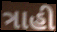
ત્રાહી